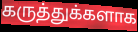
கருத்துக்களாக